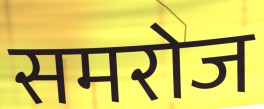
समरोज